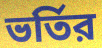
ভর্তির